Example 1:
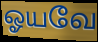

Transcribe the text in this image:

ஓயவே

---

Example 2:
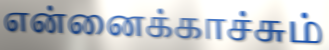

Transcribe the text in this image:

என்னைக்காச்சும்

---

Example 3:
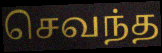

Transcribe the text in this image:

செவந்த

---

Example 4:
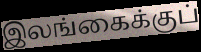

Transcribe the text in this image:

இலங்கைக்குப்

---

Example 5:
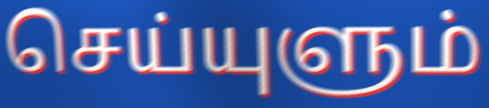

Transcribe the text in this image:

செய்யுளும்